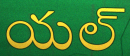
యల్